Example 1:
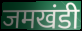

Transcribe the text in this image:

जमखंडी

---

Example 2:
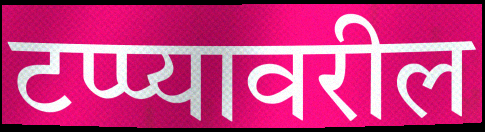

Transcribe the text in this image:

टप्प्यावरील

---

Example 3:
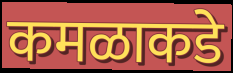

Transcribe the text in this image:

कमळाकडे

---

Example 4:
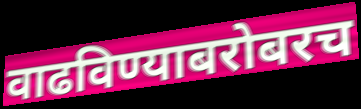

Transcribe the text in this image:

वाढविण्याबरोबरच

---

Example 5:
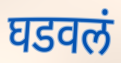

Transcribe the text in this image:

घडवलं